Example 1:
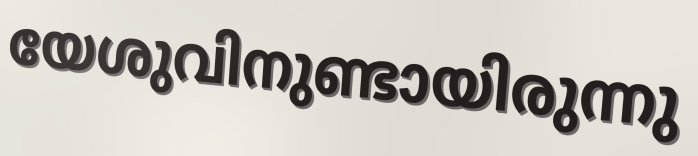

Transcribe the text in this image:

യേശുവിനുണ്ടായിരുന്നു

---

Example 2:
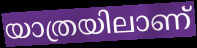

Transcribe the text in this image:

യാത്രയിലാണ്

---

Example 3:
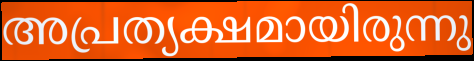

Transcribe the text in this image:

അപ്രത്യക്ഷമായിരുന്നു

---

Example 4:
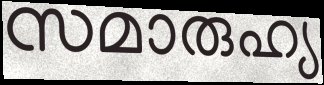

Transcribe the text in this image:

സമാരുഹ്യ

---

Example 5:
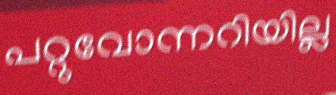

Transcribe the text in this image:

പറ്റുവോന്നറിയില്ല